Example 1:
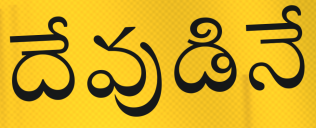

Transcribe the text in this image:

దేవుడినే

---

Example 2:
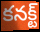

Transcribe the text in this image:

కనక్ట్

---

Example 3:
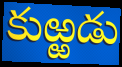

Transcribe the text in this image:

కుఱ్ఱడు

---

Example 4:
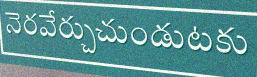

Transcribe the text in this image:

నెరవేర్చుచుండుటకు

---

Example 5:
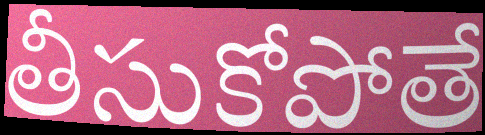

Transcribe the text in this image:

తీసుకోపోతే